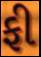
ફી